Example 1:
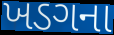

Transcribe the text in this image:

ખડગના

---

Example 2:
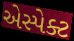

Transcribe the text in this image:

એસ્પેક્ટ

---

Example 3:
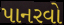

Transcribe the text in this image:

પાનરવો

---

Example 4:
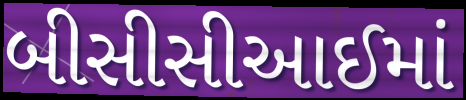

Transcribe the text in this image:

બીસીસીઆઈમાં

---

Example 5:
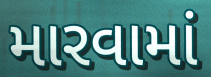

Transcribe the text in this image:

મારવામાં